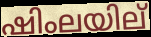
ഷിംലയില്